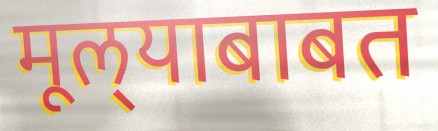
मूल्याबाबत